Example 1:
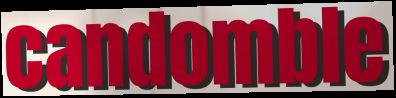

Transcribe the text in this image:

candomble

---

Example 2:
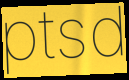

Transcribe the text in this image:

ptsd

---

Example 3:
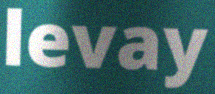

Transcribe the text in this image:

levay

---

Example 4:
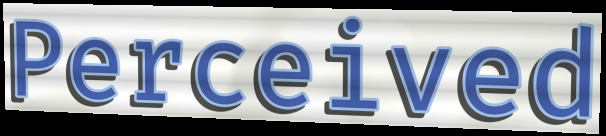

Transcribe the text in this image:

Perceived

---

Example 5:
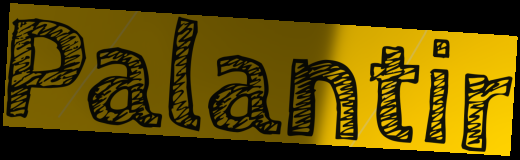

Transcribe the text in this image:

Palantir